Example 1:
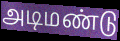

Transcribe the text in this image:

அடிமண்டு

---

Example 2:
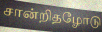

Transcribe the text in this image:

சான்றிதழோடு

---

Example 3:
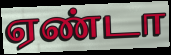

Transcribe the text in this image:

ஏண்டா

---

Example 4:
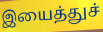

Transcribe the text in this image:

இயைத்துச்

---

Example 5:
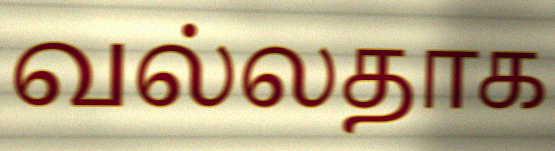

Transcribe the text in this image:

வல்லதாக